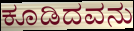
ಕೂಡಿದವನು